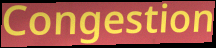
Congestion